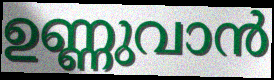
ഉണ്ണുവാൻ